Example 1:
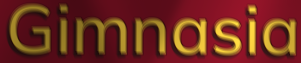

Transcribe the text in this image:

Gimnasia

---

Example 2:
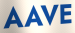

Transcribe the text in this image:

AAVE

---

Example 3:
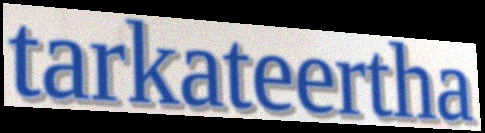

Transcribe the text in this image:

tarkateertha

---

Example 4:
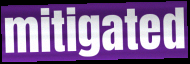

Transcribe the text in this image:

mitigated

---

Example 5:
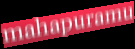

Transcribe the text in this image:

mahapuramu